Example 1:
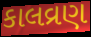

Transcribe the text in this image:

કાલવ્રણ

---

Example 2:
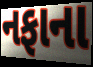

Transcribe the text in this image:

નફાના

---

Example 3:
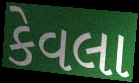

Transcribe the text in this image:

કેવલા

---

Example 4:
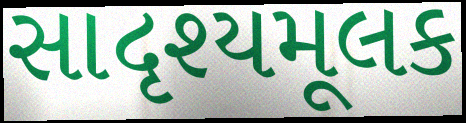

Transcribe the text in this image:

સાદૃશ્યમૂલક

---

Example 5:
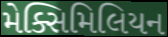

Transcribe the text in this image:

મેક્સિમિલિયન